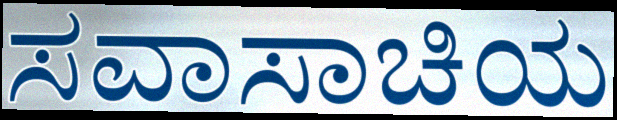
ಸವಾಸಾಚಿಯ